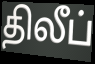
திலீப்